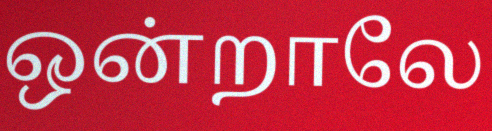
ஒன்றாலே